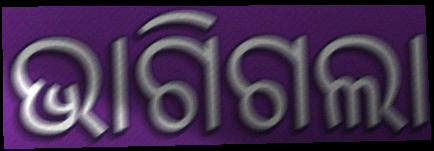
ଭାଗିଗଲା